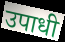
उपाधी